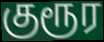
குரூர